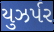
યુઝર્પર